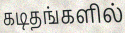
கடிதங்களில்